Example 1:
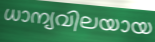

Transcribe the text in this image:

ധാന്യവിലയായ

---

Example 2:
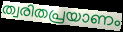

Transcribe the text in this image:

ത്വരിതപ്രയാണം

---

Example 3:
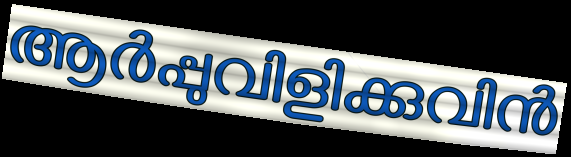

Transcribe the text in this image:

ആർപ്പുവിളിക്കുവിൻ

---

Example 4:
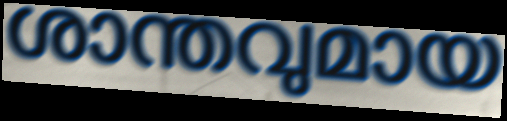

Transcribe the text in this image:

ശാന്തവുമായ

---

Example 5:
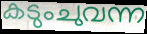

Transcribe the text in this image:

കടുംചുവന്ന